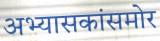
अभ्यासकांसमोर